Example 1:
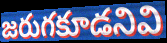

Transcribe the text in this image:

జరుగకూడనివి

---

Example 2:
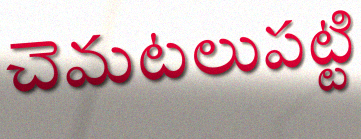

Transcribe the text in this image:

చెమటలుపట్టి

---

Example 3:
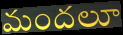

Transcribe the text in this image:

మందలూ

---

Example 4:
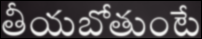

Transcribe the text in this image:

తీయబోతుంటే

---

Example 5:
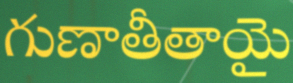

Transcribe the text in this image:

గుణాతీతాయై